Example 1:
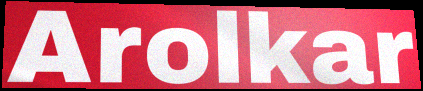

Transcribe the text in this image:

Arolkar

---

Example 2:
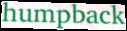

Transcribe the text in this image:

humpback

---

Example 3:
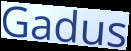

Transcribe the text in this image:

Gadus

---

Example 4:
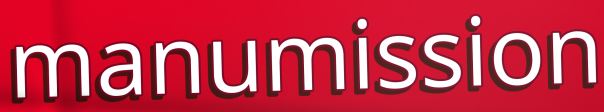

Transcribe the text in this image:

manumission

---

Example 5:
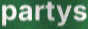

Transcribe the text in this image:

partys